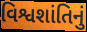
વિશ્વશાંતિનું